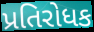
પ્રતિરોધક